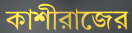
কাশীরাজের